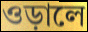
ওড়ালে